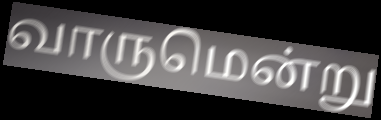
வாருமென்று